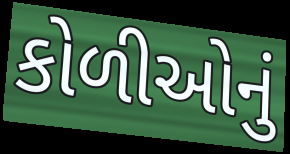
કોળીઓનું